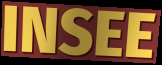
INSEE